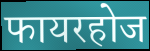
फायरहोज